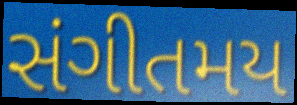
સંગીતમય